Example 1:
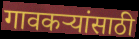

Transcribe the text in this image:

गावकऱ्यांसाठी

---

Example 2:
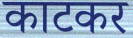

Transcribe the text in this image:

काटकर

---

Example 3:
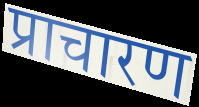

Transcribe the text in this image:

प्राचारण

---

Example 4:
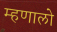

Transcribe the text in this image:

म्हणालो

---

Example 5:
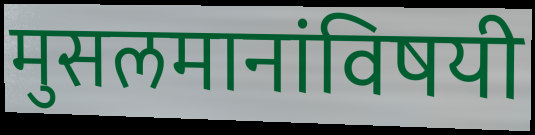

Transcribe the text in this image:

मुसलमानांविषयी